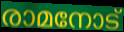
രാമനോട്